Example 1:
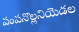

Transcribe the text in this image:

పంపనొల్లనియెడల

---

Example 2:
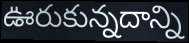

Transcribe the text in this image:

ఊరుకున్నదాన్ని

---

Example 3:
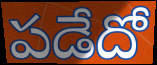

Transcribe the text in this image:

పడేదో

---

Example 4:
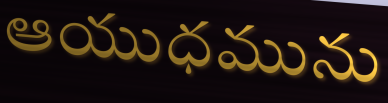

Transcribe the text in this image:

ఆయుధమును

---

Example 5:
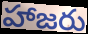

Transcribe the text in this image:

హాజరు